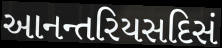
આનન્તરિયસદિસં